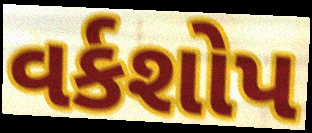
વર્કશોપ